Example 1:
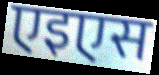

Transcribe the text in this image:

एइएस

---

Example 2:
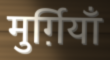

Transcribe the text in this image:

मुर्ग़ियाँ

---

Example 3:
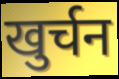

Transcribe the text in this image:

खुर्चन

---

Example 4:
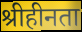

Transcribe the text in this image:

श्रीहीनता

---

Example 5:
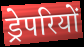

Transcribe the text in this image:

ड्रेपरियों